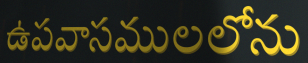
ఉపవాసములలోను